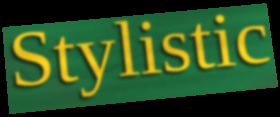
Stylistic